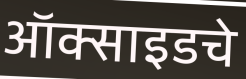
ऑक्साइडचे